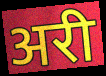
अरी